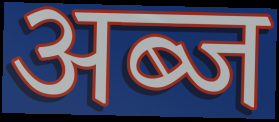
अब्ज